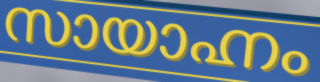
സായാഹ്നം